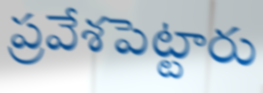
ప్రవేశపెట్టారు